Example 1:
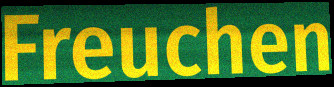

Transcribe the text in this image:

Freuchen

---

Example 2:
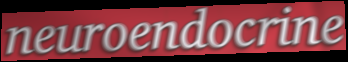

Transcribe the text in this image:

neuroendocrine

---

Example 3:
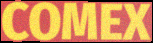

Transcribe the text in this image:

COMEX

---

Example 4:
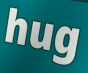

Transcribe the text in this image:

hug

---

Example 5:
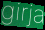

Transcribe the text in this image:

girja